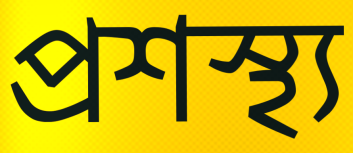
প্ৰশস্থ্য